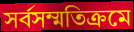
সর্বসম্মতিক্রমে